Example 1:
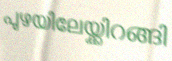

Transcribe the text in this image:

പുഴയിലേയ്ക്കിറങ്ങി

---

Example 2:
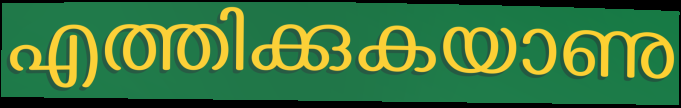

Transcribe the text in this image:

എത്തിക്കുകയാണു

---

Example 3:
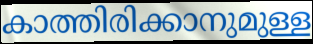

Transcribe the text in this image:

കാത്തിരിക്കാനുമുള്ള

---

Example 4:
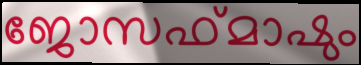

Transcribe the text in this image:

ജോസഫ്മാഷും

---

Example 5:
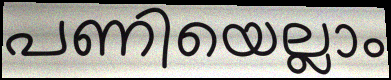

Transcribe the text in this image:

പണിയെല്ലാം